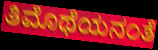
ತಿಮೊಥೆಯನಂತೆ